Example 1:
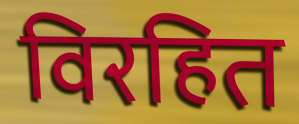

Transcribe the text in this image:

विरहित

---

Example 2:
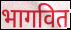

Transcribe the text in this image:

भागवित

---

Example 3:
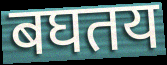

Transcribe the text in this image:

बघतय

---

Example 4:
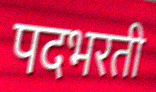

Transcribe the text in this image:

पदभरती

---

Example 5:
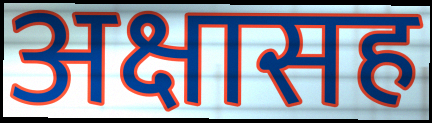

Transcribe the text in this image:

अक्षासह